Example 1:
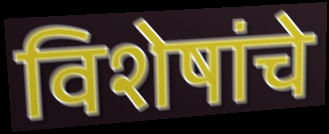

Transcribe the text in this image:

विशेषांचे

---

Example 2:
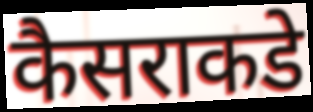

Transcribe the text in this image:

कैसराकडे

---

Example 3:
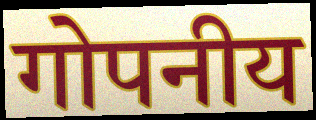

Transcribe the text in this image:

गोपनीय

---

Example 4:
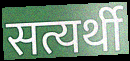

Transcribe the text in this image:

सत्यर्थी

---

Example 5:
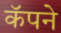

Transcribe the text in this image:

कॅपने